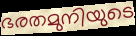
ഭരതമുനിയുടെ